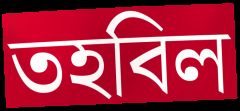
তহবিল